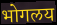
भोगलय